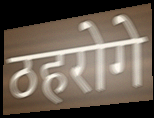
ठहरोगे